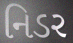
નિડર